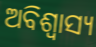
ଅବିଶ୍ୱାସ୍ୟ